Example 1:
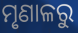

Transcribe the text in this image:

ମୃଣାଳରୁ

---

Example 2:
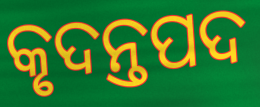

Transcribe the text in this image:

କୃଦନ୍ତପଦ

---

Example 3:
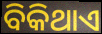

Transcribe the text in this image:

ବିକିଥାଏ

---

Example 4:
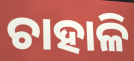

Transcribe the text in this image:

ଚାହାଳି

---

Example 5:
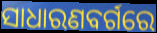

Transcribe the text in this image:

ସାଧାରଣବର୍ଗରେ